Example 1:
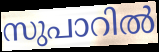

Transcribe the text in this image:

സുപാറിൽ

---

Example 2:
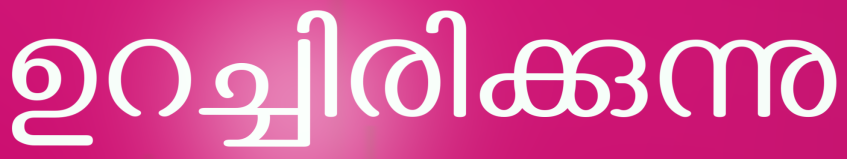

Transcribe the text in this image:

ഉറച്ചിരിക്കുന്നു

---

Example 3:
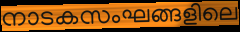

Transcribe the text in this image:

നാടകസംഘങ്ങളിലെ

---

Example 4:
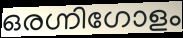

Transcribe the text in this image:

ഒരഗ്നിഗോളം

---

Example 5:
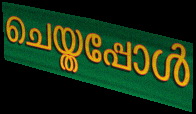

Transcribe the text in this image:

ചെയ്തപ്പോൾ